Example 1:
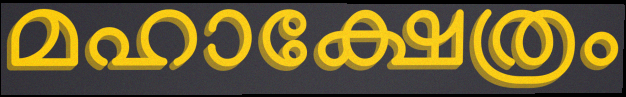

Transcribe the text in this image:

മഹാക്ഷേത്രം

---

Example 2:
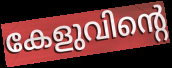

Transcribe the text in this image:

കേളുവിന്റെ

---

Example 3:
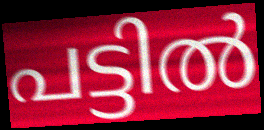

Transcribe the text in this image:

പട്ടിൽ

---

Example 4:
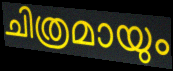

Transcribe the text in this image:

ചിത്രമായും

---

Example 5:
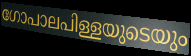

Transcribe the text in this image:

ഗോപാലപിള്ളയുടെയും